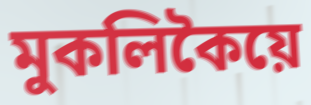
মুকলিকৈয়ে